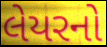
લેયરનો